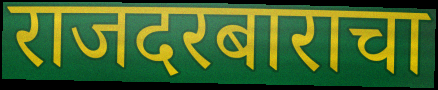
राजदरबाराचा